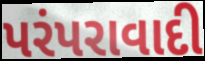
પરંપરાવાદી